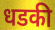
धडकी